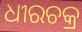
ଧୀରଚକ୍ର